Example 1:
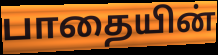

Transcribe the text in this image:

பாதையின்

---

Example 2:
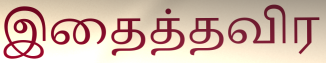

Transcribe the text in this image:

இதைத்தவிர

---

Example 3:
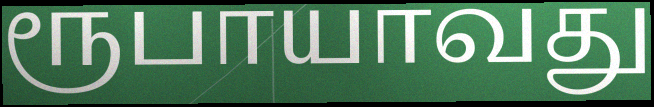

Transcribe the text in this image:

ரூபாயாவது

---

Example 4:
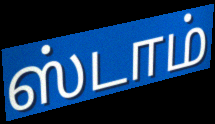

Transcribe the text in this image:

ஸ்டாம்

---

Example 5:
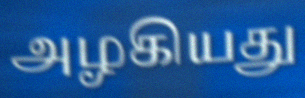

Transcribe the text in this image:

அழகியது